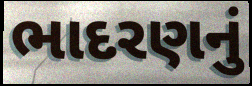
ભાદરણનું